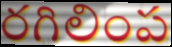
రగిలింప